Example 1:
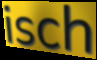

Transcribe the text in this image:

isch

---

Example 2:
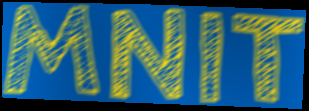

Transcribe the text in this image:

MNIT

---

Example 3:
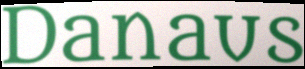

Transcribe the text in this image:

Danaus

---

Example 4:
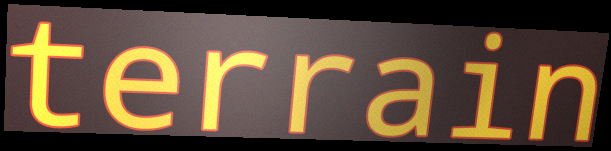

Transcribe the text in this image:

terrain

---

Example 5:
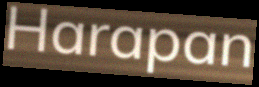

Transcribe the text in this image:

Harapan